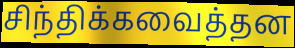
சிந்திக்கவைத்தன